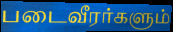
படைவீரர்களும்